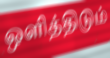
ஒளித்திடும்